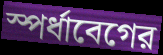
স্পর্ধাবেগের